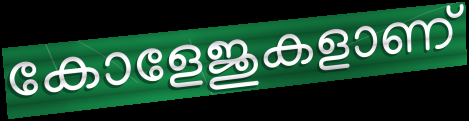
കോളേജുകളാണ്